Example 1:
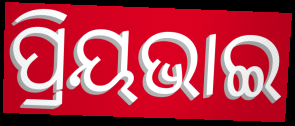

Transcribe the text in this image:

ପ୍ରିୟଭାଇ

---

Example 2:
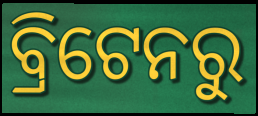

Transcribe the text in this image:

ବ୍ରିଟେନରୁ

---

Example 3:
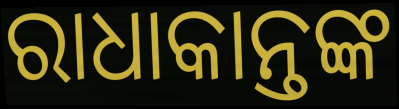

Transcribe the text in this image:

ରାଧାକାନ୍ତଙ୍କ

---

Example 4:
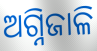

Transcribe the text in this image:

ଅଗ୍ନିଜାଳି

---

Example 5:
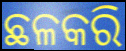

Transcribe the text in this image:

ଛଳକରି